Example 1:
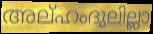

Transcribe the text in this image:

അല്ഹംദുലില്ലാ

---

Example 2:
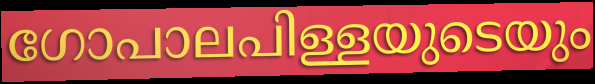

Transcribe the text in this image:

ഗോപാലപിള്ളയുടെയും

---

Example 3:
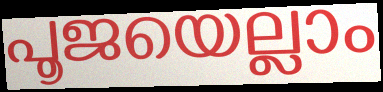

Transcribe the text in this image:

പൂജയെല്ലാം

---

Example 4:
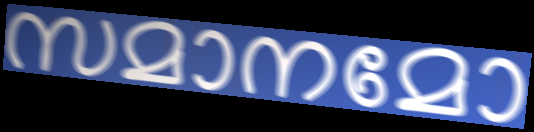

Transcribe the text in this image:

സമാനമോ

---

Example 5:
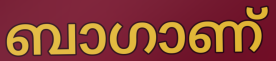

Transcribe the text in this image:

ബാഗാണ്